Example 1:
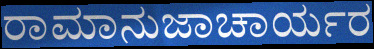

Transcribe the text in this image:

ರಾಮಾನುಜಾಚಾರ್ಯರ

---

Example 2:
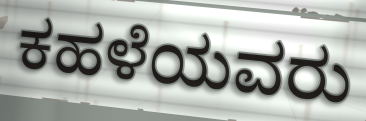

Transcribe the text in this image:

ಕಹಳೆಯವರು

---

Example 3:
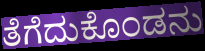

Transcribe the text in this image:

ತೆಗೆದುಕೊಂಡನು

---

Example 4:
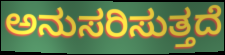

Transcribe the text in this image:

ಅನುಸರಿಸುತ್ತದೆ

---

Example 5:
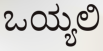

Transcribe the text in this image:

ಒಯ್ಯಲಿ